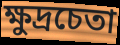
ক্ষুদ্রচেতা